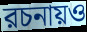
রচনায়ও